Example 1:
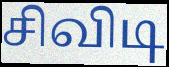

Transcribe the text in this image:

சிவிடி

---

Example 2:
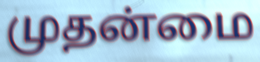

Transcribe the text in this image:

முதன்மை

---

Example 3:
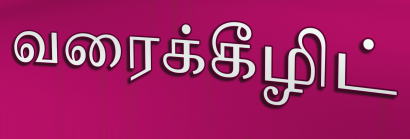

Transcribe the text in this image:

வரைக்கீழிட்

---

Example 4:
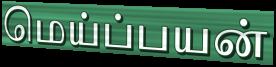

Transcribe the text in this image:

மெய்ப்பயன்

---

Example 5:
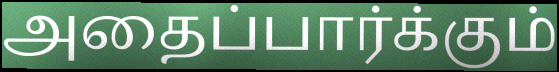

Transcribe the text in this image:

அதைப்பார்க்கும்